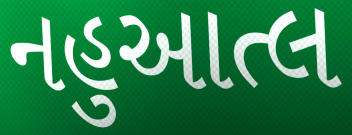
નહુઆત્લ